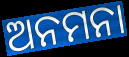
ଅନମନା